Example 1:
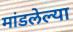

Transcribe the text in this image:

मांडलेल्या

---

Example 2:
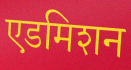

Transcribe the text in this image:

एडमिशन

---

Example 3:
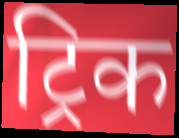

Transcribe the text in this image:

ट्रिक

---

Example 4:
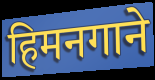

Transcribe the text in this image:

हिमनगाने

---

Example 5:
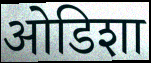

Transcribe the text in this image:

ओडिशा